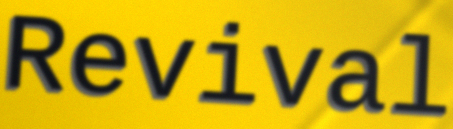
Revival